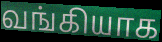
வங்கியாக